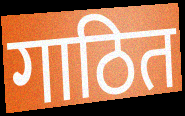
गाठित